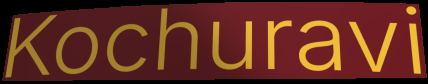
Kochuravi